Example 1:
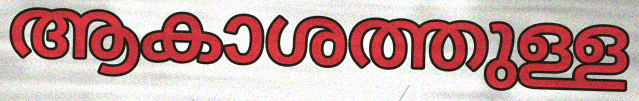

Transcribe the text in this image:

ആകാശത്തുള്ള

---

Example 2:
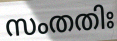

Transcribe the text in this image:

സംതതിഃ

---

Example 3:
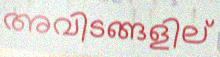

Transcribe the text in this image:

അവിടങ്ങളില്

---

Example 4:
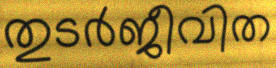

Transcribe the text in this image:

തുടർജീവിത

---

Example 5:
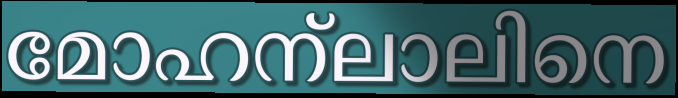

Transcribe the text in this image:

മോഹന്ലാലിനെ